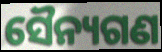
ସୈନ୍ୟଗଣ